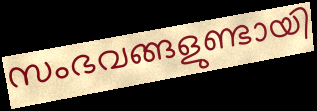
സംഭവങ്ങളുണ്ടായി